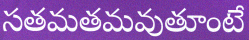
సతమతమవుతూంటే